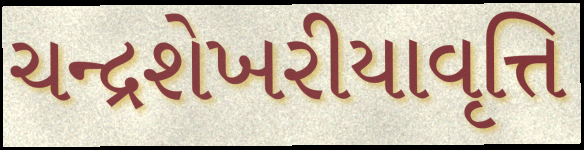
ચન્દ્રશેખરીયાવૃત્તિ